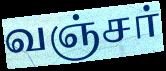
வஞ்சர்